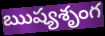
ఋష్యశృంగ